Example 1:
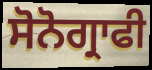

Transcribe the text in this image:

ਸੋਨੋਗ੍ਰਾਫੀ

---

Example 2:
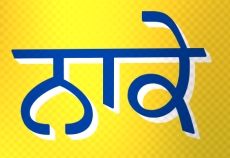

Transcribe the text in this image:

ਨਾਕੇ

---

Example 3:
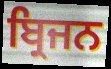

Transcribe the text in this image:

ਬ੍ਰਿਜਨ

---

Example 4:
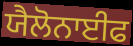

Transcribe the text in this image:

ਯੈਲੋਨਾਈਫ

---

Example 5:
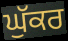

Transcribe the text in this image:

ਘੁੱਕਰ